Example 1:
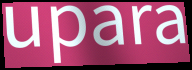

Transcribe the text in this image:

upara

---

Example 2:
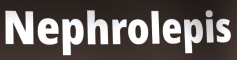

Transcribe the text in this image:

Nephrolepis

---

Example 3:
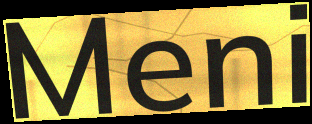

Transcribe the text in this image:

Meni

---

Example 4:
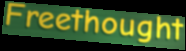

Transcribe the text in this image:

Freethought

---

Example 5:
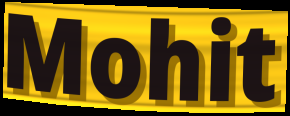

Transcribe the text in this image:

Mohit